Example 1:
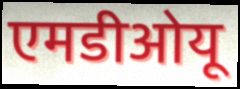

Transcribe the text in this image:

एमडीओयू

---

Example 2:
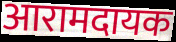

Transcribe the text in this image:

आरामदायक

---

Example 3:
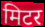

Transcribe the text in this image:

मिटर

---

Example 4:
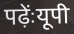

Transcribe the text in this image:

पढ़ेंःयूपी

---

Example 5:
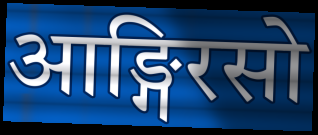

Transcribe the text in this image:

आङ्गिरसो